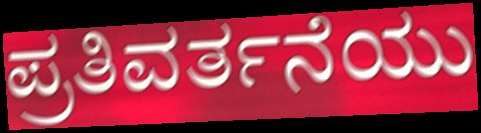
ಪ್ರತಿವರ್ತನೆಯು